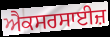
ਐਕਸਰਸਾਈਜ਼